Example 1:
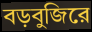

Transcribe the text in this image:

বড়বুজিরে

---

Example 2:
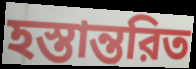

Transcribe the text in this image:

হস্তান্তরিত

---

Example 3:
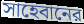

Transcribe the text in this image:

সাহেবানের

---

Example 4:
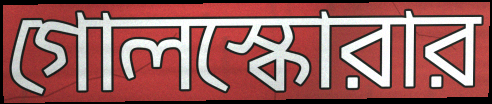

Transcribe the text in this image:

গোলস্কোরার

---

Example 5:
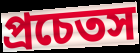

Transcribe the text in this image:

প্রচেতস